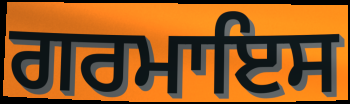
ਗਰਮਾਇਸ